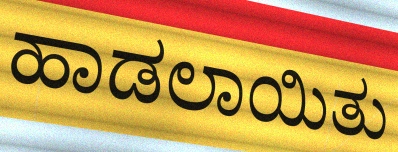
ಹಾಡಲಾಯಿತು